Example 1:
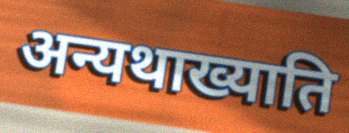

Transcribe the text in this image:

अन्यथाख्याति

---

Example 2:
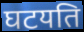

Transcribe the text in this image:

घटयति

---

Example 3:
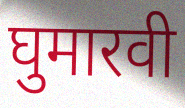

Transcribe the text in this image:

घुमारवी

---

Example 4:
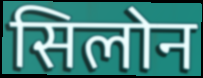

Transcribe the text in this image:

सिलोन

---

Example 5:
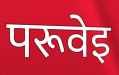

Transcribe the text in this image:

परूवेइ